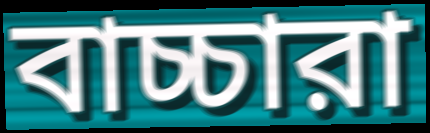
বাচ্চারা